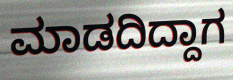
ಮಾಡದಿದ್ದಾಗ